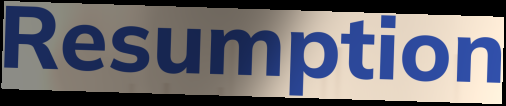
Resumption